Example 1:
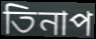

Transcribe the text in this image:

তিনাপ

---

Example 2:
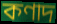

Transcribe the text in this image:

কণাদ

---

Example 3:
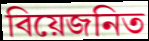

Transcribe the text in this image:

বিয়েজনিত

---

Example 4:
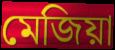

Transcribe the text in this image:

মেজিয়া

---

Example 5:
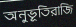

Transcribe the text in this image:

অনুভূতিরাজি